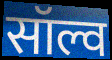
सॉल्व